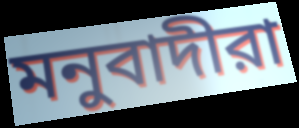
মনুবাদীরা